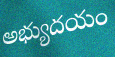
అభ్యుదయం